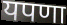
यपणा